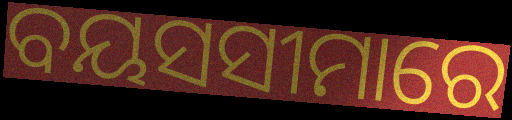
ବୟସସୀମାରେ